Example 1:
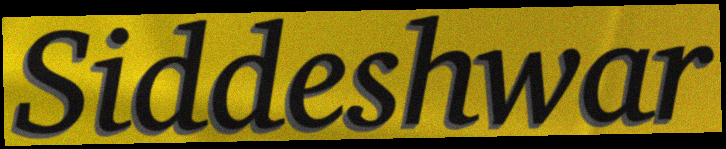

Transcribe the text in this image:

Siddeshwar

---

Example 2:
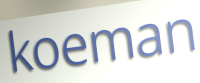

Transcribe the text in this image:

koeman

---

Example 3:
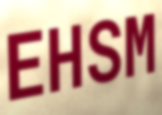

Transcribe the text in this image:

EHSM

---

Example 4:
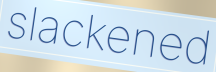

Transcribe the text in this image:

slackened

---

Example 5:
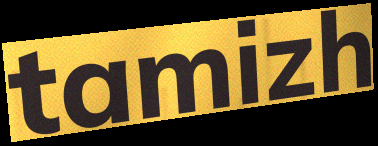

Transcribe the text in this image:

tamizh